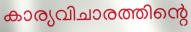
കാര്യവിചാരത്തിന്റെ